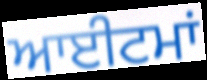
ਆਈਟਮਾਂ